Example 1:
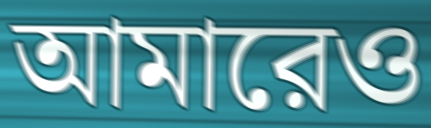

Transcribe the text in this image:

আমারেও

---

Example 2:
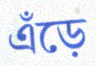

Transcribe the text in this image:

এঁড়ে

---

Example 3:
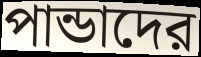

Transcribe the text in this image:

পান্ডাদের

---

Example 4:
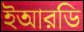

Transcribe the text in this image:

ইআরডি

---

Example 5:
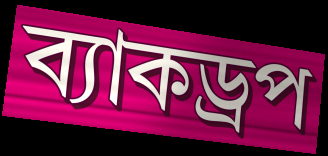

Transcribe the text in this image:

ব্যাকড্রপ